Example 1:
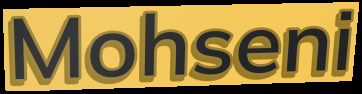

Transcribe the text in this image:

Mohseni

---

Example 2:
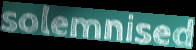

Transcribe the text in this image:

solemnised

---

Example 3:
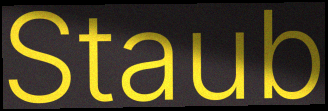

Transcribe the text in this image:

Staub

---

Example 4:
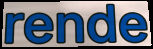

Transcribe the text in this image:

rende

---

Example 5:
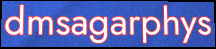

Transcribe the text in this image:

dmsagarphys